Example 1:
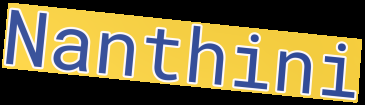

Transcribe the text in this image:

Nanthini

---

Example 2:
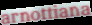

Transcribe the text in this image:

arnottiana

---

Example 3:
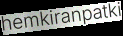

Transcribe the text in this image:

hemkiranpatki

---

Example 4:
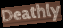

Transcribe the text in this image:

Deathly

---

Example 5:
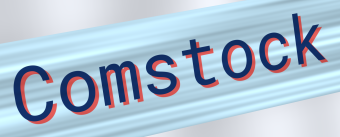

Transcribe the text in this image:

Comstock